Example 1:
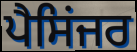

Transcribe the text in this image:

ਪੈਸਿਂਜਰ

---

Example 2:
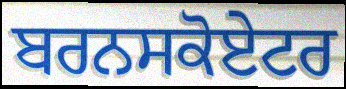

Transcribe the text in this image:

ਬਰਨਸਕੋਏਟਰ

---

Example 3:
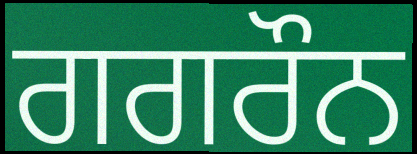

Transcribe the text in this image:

ਗਗਰੌਨ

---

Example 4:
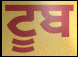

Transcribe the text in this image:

ਟੂਬ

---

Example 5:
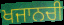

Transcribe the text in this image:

ਖਜਾਨਚੀ